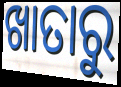
ଖାତାରୁ